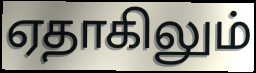
ஏதாகிலும்